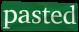
pasted